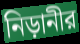
নিড়ানীর